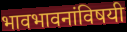
भावभावनांविषयी